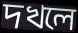
দখলে